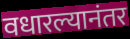
वधारल्यानंतर